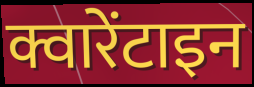
क्वारेंटाइन